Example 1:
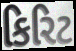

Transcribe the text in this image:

કિરિટ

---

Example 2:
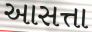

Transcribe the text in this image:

આસત્તા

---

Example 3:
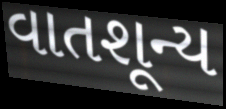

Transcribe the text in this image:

વાતશૂન્ય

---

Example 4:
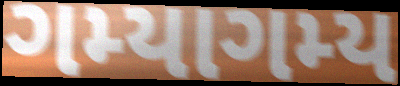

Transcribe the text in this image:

ગમ્યાગમ્ય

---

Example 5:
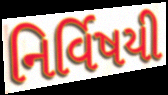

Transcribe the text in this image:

નિર્વિષયી